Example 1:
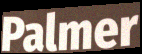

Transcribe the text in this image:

Palmer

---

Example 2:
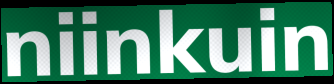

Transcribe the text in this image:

niinkuin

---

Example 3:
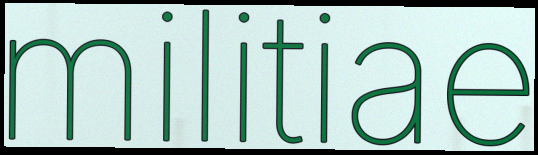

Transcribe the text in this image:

militiae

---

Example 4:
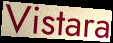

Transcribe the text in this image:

Vistara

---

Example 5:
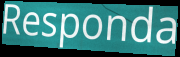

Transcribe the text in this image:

Responda